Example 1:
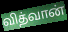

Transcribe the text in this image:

வித்வான்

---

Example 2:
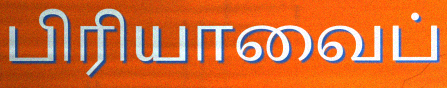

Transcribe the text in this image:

பிரியாவைப்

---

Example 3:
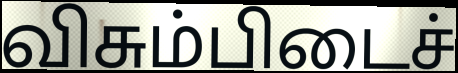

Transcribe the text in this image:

விசும்பிடைச்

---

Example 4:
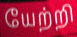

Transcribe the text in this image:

யேற்றி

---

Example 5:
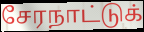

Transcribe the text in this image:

சேரநாட்டுக்